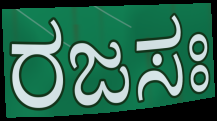
ರಜಸಃ